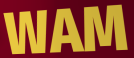
WAM